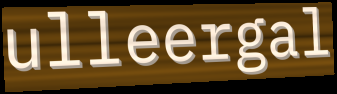
ulleergal